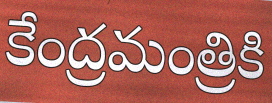
కేంద్రమంత్రికి